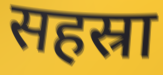
सहस्रा